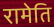
रामेति